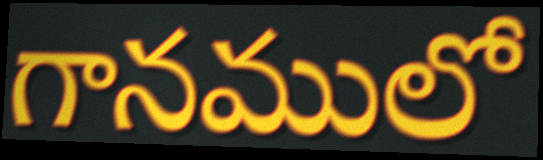
గానములో